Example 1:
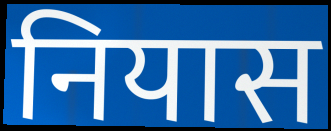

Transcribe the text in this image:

नियास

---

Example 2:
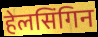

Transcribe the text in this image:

हेलसिंगिन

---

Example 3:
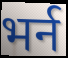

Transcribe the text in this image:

भर्न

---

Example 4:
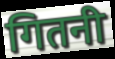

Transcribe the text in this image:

गितनी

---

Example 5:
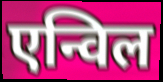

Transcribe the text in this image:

एन्विल